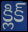
క్లిక్